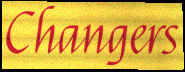
Changers